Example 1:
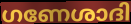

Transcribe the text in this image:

ഗണേശാദി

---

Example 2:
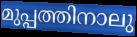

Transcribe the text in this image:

മുപ്പത്തിനാലു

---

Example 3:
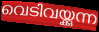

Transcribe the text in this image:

വെടിവയ്ക്കുന്ന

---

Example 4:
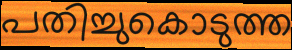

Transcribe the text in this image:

പതിച്ചുകൊടുത്ത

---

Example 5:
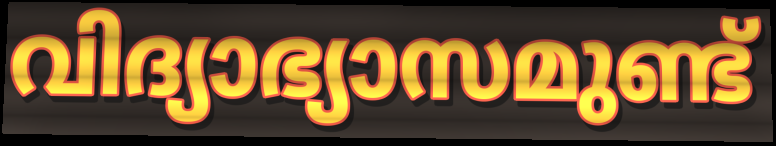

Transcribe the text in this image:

വിദ്യാഭ്യാസമുണ്ട്